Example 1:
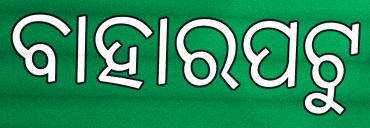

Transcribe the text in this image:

ବାହାରପଟୁ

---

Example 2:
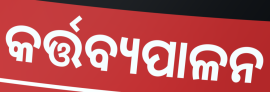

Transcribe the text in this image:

କର୍ତ୍ତବ୍ୟପାଳନ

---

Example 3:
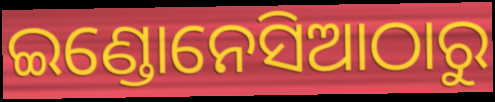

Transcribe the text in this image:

ଇଣ୍ଡୋନେସିଆଠାରୁ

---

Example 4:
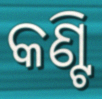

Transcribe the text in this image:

କଣ୍ଟି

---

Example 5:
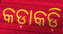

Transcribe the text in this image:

କଡ଼ାକଡ଼ି